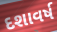
દશાવર્ષ